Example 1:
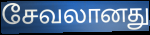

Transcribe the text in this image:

சேவலானது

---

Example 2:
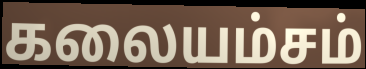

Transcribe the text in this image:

கலையம்சம்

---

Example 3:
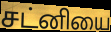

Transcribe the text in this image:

சட்னியை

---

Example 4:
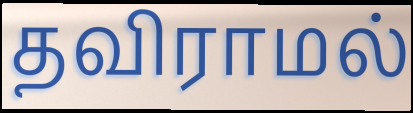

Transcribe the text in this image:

தவிராமல்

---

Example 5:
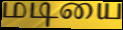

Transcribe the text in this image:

மடியை